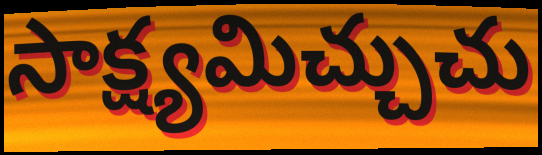
సాక్ష్యమిచ్చుచు